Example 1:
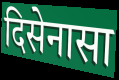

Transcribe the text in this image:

दिसेनासा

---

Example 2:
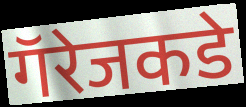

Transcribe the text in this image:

गॅरेजकडे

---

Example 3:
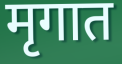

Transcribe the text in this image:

मृगात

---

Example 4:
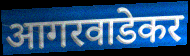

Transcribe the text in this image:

आगरवाडेकर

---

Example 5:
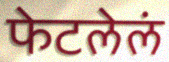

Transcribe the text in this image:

फेटलेलं